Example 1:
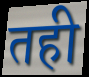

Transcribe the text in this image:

तही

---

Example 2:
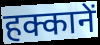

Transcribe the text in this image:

हक्कानें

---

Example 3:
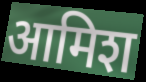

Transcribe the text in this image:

आमिश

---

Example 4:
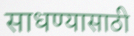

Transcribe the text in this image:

साधण्यासाठी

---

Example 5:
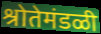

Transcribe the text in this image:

श्रोतेमंडळी